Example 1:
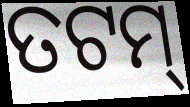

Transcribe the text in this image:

ତଟମ୍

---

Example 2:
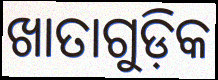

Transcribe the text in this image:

ଖାତାଗୁଡ଼ିକ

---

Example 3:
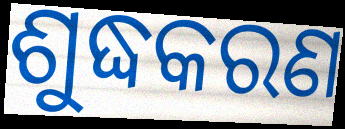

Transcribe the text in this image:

ଶୁଦ୍ଧକରଣ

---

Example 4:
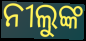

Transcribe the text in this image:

ନୀଲୁଙ୍କ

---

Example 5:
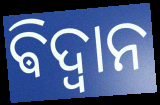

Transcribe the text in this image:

ଵିଦ୍ଵାନ